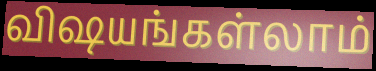
விஷயங்கள்லாம்